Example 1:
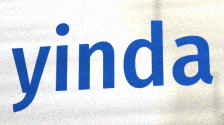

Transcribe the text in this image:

yinda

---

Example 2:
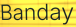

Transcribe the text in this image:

Banday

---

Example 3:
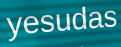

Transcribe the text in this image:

yesudas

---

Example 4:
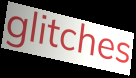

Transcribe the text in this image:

glitches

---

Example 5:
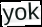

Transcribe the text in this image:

yok